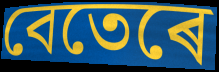
বেতেৰে